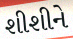
શીશીને